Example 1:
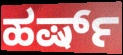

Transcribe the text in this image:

ಹರ್ಷ್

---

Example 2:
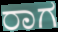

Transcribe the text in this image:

ರಾಗ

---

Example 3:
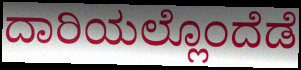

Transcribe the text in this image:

ದಾರಿಯಲ್ಲೊಂದೆಡೆ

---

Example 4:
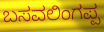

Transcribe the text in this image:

ಬಸವಲಿಂಗಪ್ಪ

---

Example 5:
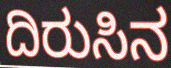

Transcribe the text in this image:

ದಿರುಸಿನ